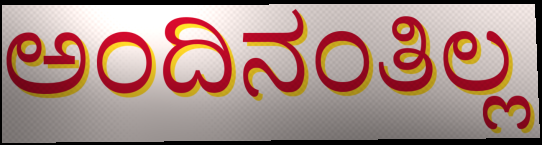
ಅಂದಿನಂತಿಲ್ಲ